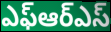
ఎఫ్ఆర్ఎస్